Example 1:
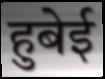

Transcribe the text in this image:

हुबेई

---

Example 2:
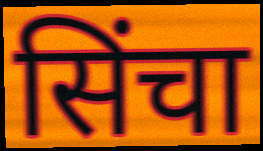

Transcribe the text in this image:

सिंचा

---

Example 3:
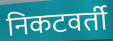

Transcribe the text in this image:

निकटवर्ती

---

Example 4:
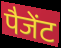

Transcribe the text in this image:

पैजेंट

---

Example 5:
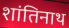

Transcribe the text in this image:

शांतिनाथ